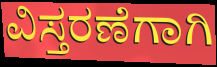
ವಿಸ್ತರಣೆಗಾಗಿ